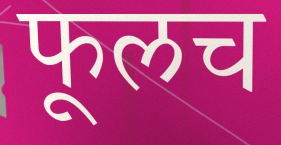
फूलच